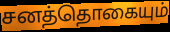
சனத்தொகையும்